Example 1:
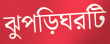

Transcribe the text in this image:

ঝুপড়িঘরটি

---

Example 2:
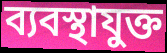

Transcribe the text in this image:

ব্যবস্থাযুক্ত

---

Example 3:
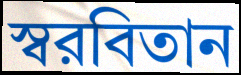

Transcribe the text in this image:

স্বরবিতান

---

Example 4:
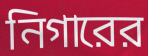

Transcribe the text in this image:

নিগারের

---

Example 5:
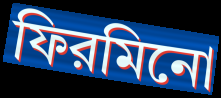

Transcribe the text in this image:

ফিরমিনো